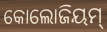
କୋଲୋଜିୟମ୍